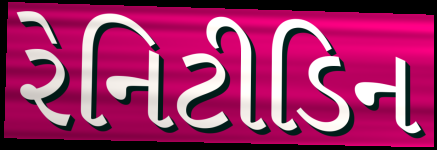
રેનિટીડિન